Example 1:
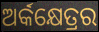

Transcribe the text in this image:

ଅର୍କକ୍ଷେତ୍ରର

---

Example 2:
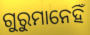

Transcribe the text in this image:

ଗୁରୁମାନେହିଁ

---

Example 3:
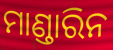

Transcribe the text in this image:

ମାଣ୍ଡାରିନ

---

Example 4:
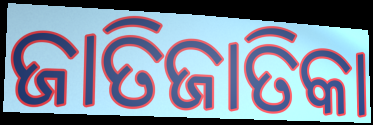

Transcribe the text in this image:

ଜାତିଜାତିକା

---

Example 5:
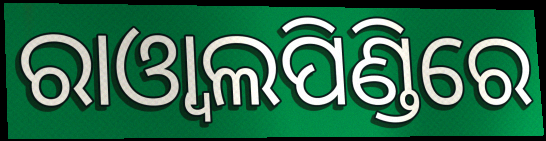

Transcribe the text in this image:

ରାଓ୍ଵାଲପିଣ୍ଡିରେ